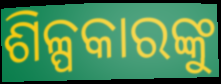
ଶିଳ୍ପକାରଙ୍କୁ